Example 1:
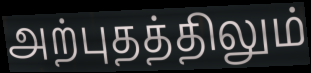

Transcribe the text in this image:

அற்புதத்திலும்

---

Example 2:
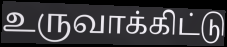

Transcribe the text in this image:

உருவாக்கிட்டு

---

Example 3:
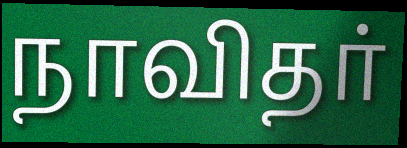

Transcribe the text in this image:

நாவிதர்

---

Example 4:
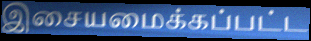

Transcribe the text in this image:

இசையமைக்கப்பட்ட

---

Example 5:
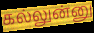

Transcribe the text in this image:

கல்லுன்னு